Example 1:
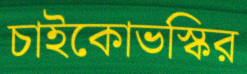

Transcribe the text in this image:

চাইকোভস্কির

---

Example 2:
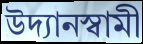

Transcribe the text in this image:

উদ্যানস্বামী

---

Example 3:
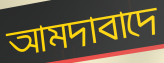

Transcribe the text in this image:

আমদাবাদে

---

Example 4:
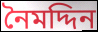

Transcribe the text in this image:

নৈমদ্দিন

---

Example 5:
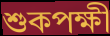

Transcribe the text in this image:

শুকপক্ষী